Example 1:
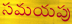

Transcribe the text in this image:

సమయపు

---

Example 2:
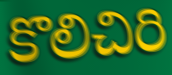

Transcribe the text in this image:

కొలిచిరి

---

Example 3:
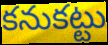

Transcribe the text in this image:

కనుకట్టు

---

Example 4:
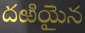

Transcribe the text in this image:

దఱియైన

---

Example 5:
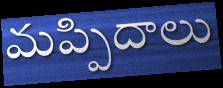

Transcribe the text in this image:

మప్పిదాలు